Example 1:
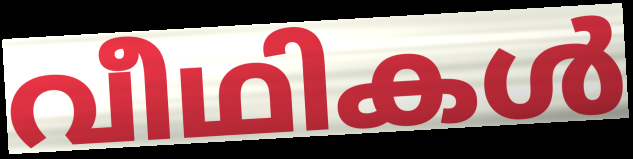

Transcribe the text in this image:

വീഥികൾ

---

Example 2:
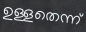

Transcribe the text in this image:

ഉള്ളതെന്ന്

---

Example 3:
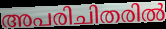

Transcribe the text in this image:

അപരിചിതരിൽ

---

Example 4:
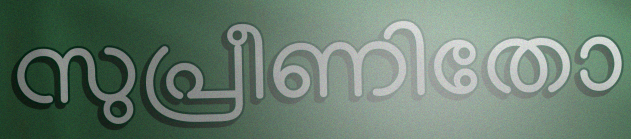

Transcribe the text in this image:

സുപ്രീണിതോ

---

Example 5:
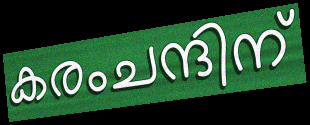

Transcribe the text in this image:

കരംചന്ദിന്